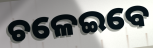
ଚଳେଇବେ